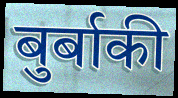
बुर्बाकी